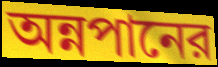
অন্নপানের